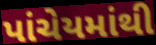
પાંચેયમાંથી